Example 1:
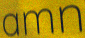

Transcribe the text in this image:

amn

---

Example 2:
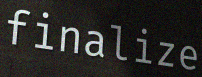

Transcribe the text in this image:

finalize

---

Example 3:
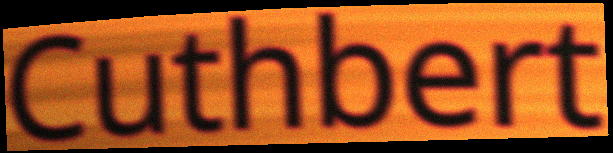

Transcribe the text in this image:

Cuthbert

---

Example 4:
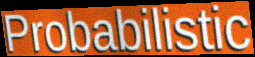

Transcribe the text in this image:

Probabilistic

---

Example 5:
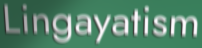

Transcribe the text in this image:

Lingayatism